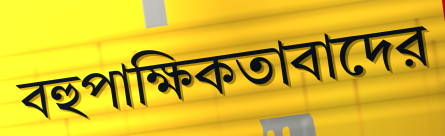
বহুপাক্ষিকতাবাদের